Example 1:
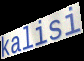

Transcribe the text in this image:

kalisi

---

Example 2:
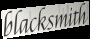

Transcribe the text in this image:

blacksmith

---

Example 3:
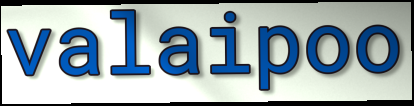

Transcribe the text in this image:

valaipoo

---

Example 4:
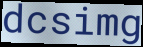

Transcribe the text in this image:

dcsimg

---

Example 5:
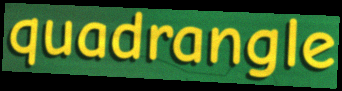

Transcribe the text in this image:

quadrangle